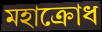
মহাক্রোধ